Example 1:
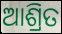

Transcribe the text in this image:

ଆଶ୍ରିତ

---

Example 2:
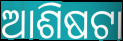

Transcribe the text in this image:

ଆଶିଷଟା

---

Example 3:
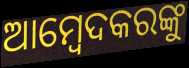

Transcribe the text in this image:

ଆମ୍ବେଦକରଙ୍କୁ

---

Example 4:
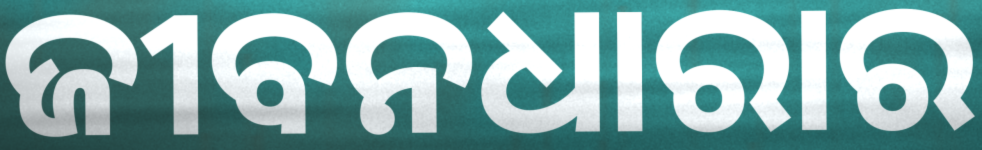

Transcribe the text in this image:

ଜୀବନଧାରାର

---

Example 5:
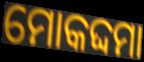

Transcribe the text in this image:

ମୋକଦ୍ଦମା